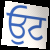
ਓੁਟ